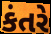
કંતરે